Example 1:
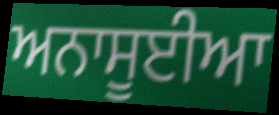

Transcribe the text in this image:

ਅਨਾਸੂਈਆ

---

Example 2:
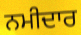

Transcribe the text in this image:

ਨਮੀਦਾਰ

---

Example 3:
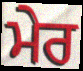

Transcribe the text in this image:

ਮੇਰ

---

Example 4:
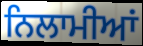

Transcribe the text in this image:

ਨਿਲਾਮੀਆਂ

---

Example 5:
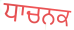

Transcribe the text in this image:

ਧਾਚਨਕ